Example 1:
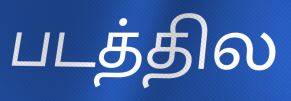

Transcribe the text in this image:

படத்தில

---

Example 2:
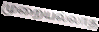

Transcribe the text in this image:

முறையல்லாத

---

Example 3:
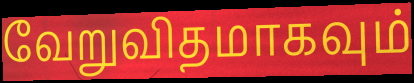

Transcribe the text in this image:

வேறுவிதமாகவும்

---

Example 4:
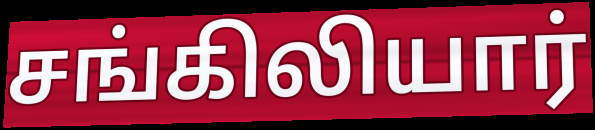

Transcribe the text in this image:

சங்கிலியார்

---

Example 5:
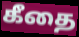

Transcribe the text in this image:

கீதை